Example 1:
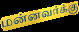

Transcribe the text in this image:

மன்னவர்க்கு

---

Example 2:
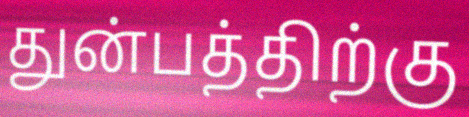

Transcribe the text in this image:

துன்பத்திற்கு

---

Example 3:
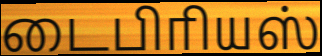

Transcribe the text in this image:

டைபிரியஸ்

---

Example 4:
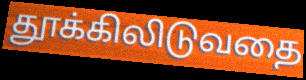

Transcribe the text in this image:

தூக்கிலிடுவதை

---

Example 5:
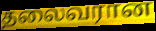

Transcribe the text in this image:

தலைவரான